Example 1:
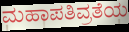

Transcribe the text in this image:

ಮಹಾಪತಿವ್ರತೆಯ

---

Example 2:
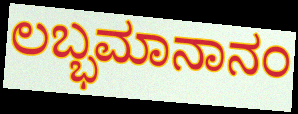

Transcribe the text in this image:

ಲಬ್ಭಮಾನಾನಂ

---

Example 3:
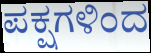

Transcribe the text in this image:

ಪಕ್ಷಗಳಿಂದ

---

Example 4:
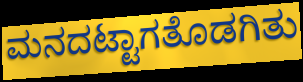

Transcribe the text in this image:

ಮನದಟ್ಟಾಗತೊಡಗಿತು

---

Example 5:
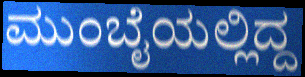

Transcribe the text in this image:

ಮುಂಬೈಯಲ್ಲಿದ್ದ